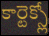
కార్టెక్స్లో